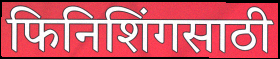
फिनिशिंगसाठी